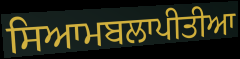
ਸਿਆਮਬਲਾਪੀਤੀਆ